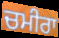
ਚਮੀਰਾ